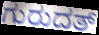
ಗುರುದತ್